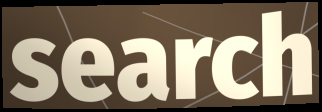
search